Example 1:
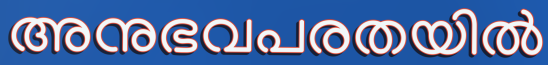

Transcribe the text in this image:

അനുഭവപരതയിൽ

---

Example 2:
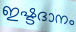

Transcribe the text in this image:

ഇഷ്ടദാനം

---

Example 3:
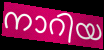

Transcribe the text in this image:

നാറിയ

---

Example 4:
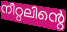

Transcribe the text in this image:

നീറ്റലിന്റെ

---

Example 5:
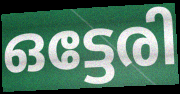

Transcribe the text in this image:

ഒട്ടേരി